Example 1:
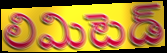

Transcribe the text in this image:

లిమిటెడ్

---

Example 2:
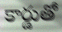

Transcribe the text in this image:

కార్డుతో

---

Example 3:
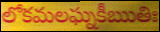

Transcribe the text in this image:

లోకమలఘ్నకీఋతిః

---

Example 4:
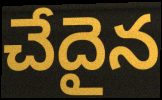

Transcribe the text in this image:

చేదైన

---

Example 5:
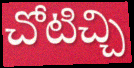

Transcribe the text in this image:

చోటిచ్చి